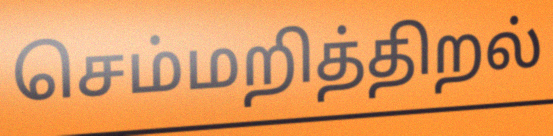
செம்மறித்திறல்